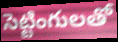
సెట్టింగులతో